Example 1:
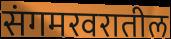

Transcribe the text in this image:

संगमरवरातील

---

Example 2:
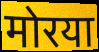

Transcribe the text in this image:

मोरया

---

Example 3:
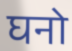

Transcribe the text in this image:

घनो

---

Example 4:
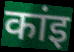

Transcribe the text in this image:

कांइ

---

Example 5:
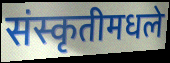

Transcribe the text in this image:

संस्कृतीमधले